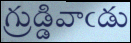
గ్రుడ్డివాఁడు